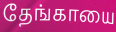
தேங்காயை